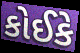
કોઈકે